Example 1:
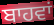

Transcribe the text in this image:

ਬਾਹਵਾਂ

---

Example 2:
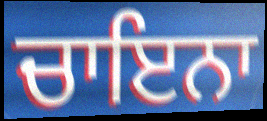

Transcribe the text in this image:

ਚਾਇਨਾ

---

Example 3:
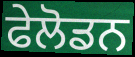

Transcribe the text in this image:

ਫੇਲੋਡਨ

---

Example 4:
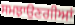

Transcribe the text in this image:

ਸਮਝਾਉਣਗੀਆਂ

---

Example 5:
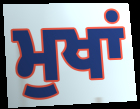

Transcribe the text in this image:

ਮੁਖਾਂ